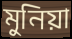
মুনিয়া